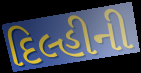
દિલ્હીની